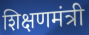
शिक्षणमंत्री